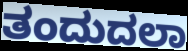
ತಂದುದಲಾ